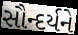
સૌન્દર્યને